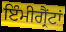
ਇੰਮੀਗ੍ਰੈਂਟਾਂ